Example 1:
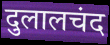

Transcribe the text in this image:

दुलालचंद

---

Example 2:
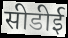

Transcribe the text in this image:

सीडीई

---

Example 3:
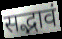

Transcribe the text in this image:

सद्भावं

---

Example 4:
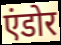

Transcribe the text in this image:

एंडोर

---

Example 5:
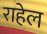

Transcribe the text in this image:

राहेल